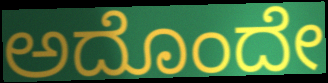
ಅದೊಂದೇ